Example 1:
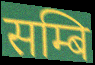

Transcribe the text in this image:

सम्बि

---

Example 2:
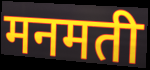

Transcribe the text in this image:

मनमती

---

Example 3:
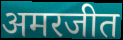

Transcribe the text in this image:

अमरजीत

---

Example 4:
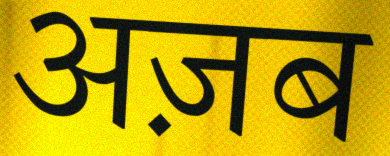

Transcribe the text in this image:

अज़ब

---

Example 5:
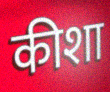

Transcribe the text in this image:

कीशा